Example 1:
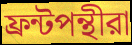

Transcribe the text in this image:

ফ্রন্টপন্থীরা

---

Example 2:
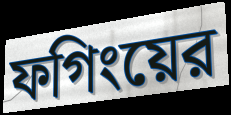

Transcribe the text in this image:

ফগিংয়ের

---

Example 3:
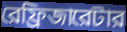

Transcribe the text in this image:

রেফ্রিজারেটার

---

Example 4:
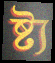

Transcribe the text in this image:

ষ্ট্য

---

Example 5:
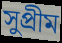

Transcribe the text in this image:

সুপ্রীম